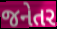
જનેતર